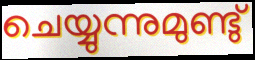
ചെയ്യുന്നുമുണ്ടു്